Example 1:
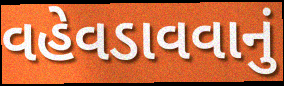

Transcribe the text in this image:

વહેવડાવવાનું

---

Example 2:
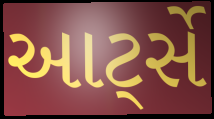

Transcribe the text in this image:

આર્ટ્સે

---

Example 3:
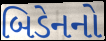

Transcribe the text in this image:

બિડેનનો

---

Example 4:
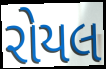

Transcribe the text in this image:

રોયલ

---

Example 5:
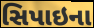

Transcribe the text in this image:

સિપાઇના